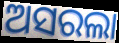
ଅସରଲା